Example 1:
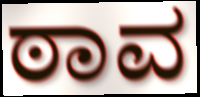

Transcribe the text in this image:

ಠಾವ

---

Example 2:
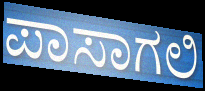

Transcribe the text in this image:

ಪಾಸಾಗಲಿ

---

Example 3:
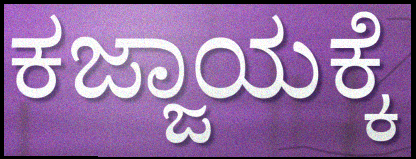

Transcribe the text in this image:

ಕಜ್ಜಾಯಕ್ಕೆ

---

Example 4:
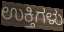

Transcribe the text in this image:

ಉಕ್ತಿಗಳು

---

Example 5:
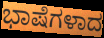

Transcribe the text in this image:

ಭಾಷೆಗಳಾದ